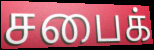
சபைக்